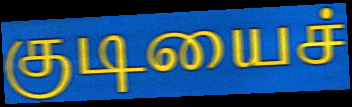
குடியைச்